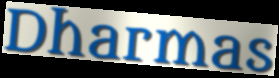
Dharmas